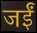
जईं